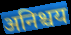
अनिश्चय